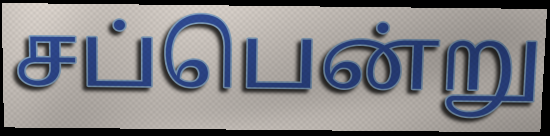
சப்பென்று